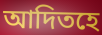
আদিতহে